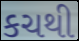
કચથી